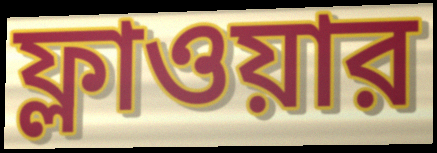
ফ্লাওয়ার